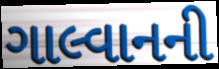
ગાલ્વાનની